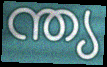
ന്ത്യ